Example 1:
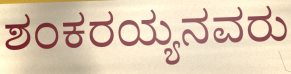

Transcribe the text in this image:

ಶಂಕರಯ್ಯನವರು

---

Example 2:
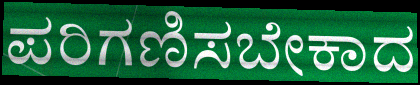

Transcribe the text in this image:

ಪರಿಗಣಿಸಬೇಕಾದ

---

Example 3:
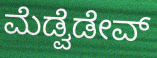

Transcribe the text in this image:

ಮೆಡ್ವೆಡೇವ್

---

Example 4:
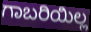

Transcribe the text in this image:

ಗಾಬರಿಯಿಲ್ಲ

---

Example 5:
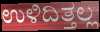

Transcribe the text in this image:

ಉಳಿದಿತ್ತಲ್ಲ